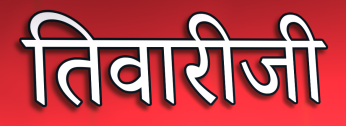
तिवारीजी